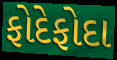
ફોદેફોદા